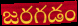
జరగడం